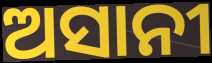
ଅସାନୀ